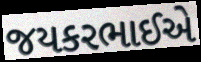
જયકરભાઈએ